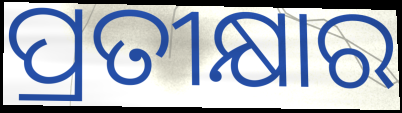
ପ୍ରତୀକ୍ଷାର